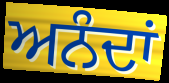
ਅਨੰਦਾਂ